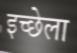
इच्छेला